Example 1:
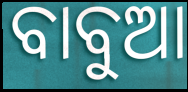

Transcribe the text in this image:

ବାବୁଆ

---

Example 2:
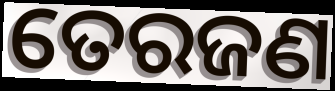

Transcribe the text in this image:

ତେରଜଣ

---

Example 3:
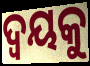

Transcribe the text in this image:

ଦ୍ଵୟକୁ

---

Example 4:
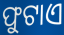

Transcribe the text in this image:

ଫୁଟାଏ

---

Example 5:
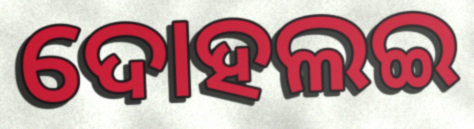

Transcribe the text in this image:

ଦୋହଲଇ